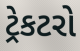
ટ્રેકટરો